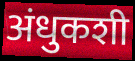
अंधुकशी